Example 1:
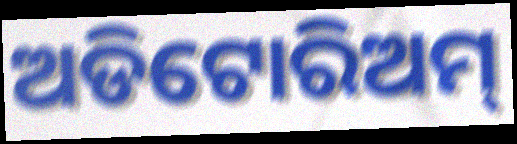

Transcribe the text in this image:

ଅଡିଟୋରିଅମ୍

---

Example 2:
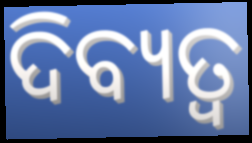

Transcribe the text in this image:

ଦିବ୍ୟତ୍ବ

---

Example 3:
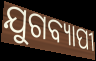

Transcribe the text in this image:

ଯୁଗବ୍ୟାପୀ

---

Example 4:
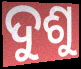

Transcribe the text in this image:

ଦୁଶୁ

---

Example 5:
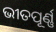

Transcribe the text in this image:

ଭୀତପୂର୍ଣ୍ଣ